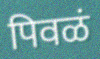
पिवळं